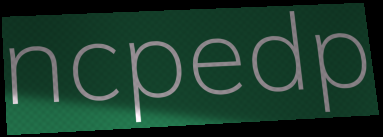
ncpedp